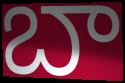
బా